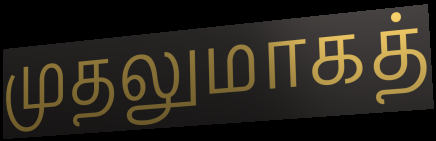
முதலுமாகத்